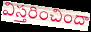
విస్తరించిందా